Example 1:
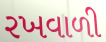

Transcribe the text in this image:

રખવાળી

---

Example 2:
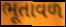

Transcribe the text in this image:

ભૂતાવળ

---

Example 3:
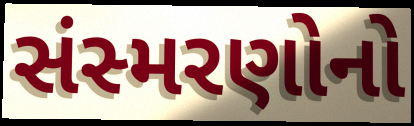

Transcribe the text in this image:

સંસ્મરણોનો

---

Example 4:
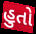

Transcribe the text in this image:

હુતો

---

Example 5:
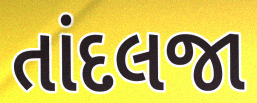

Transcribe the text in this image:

તાંદલજા